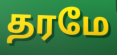
தரமே